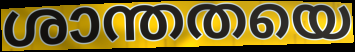
ശാന്തതയെ